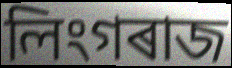
লিংগৰাজ